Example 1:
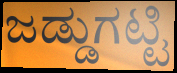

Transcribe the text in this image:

ಜಡ್ಡುಗಟ್ಟಿ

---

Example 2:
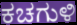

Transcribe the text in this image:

ಕಚಗುಳಿ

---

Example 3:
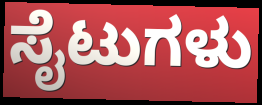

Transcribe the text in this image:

ಸೈಟುಗಳು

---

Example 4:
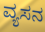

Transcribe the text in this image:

ವ್ಯಸನ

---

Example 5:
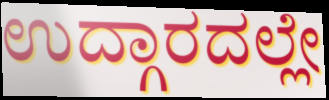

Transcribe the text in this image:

ಉದ್ಗಾರದಲ್ಲೇ